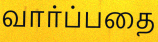
வார்ப்பதை